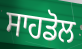
ਸਾਹਡੋਲ